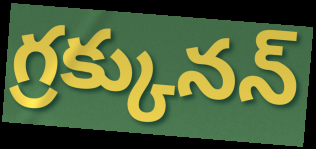
గ్రక్కునన్